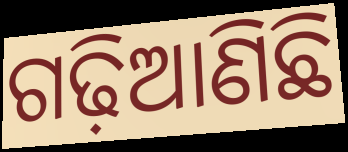
ଗଢ଼ିଆଣିଛି